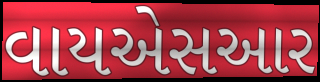
વાયએસઆર